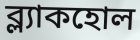
ব্ল্যাকহোল